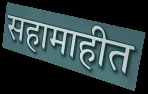
सहामाहीत